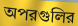
অপরগুলির